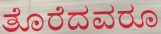
ತೊರೆದವರೂ